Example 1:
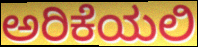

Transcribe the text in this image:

ಅರಿಕೆಯಲಿ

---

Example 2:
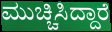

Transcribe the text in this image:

ಮುಚ್ಚಿಸಿದ್ದಾರೆ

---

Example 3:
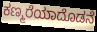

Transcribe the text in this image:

ಕಣ್ಮರೆಯಾದೊಡನೆ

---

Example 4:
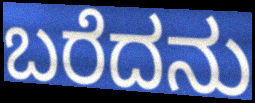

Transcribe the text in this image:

ಬರೆದನು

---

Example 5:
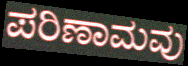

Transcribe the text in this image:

ಪರಿಣಾಮವು